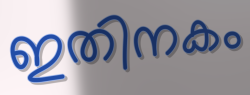
ഇതിനകം